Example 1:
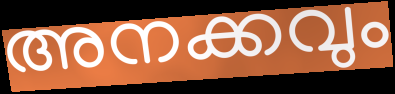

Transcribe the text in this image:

അനക്കവും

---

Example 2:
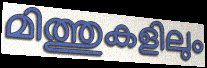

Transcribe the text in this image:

മിത്തുകളിലും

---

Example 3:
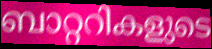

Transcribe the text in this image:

ബാറ്ററികളുടെ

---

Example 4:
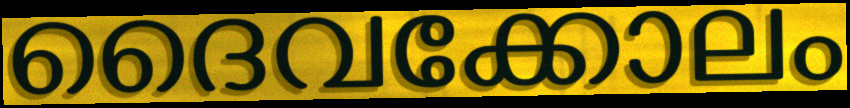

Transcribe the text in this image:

ദൈവക്കോലം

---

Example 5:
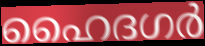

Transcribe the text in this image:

ഹൈദഗർ